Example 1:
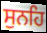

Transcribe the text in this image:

ਸੁਨਹਿ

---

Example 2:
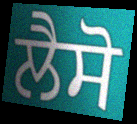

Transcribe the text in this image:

ਲੈਸੋ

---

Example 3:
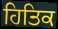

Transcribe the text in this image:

ਹਿਤਿਕ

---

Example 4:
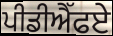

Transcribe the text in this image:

ਪੀਡੀਐੱਫਏ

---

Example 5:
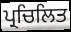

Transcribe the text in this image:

ਪ੍ਰਚਿਲਿਤ